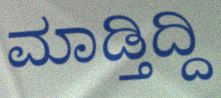
ಮಾಡ್ತಿದ್ದಿ